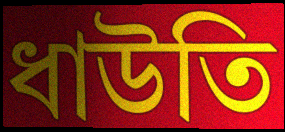
ধাউতি